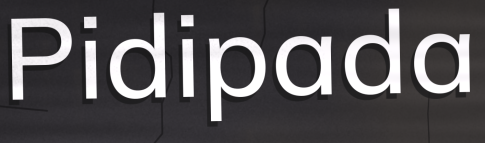
Pidipada